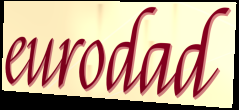
eurodad